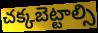
చక్కబెట్టాల్సి